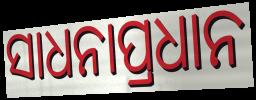
ସାଧନାପ୍ରଧାନ